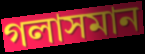
গলাসমান